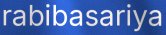
rabibasariya